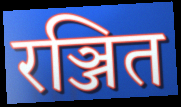
रञ्जित